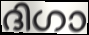
ദിഗാ